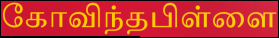
கோவிந்தபிள்ளை